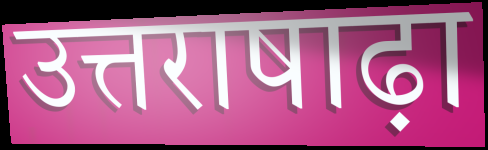
उत्तराषाढ़ा